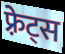
फ़्रेट्स